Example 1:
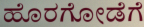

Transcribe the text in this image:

ಹೊರಗೋಡೆಗೆ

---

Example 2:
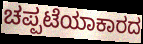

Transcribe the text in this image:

ಚಪ್ಪಟೆಯಾಕಾರದ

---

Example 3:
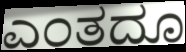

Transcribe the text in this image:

ಎಂತದೂ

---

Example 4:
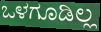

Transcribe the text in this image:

ಒಳಗೂಡಿಲ್ಲ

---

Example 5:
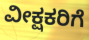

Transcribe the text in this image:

ವೀಕ್ಷಕರಿಗೆ